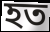
হত